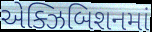
એક્ઝિબિશનમાં